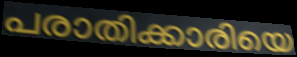
പരാതിക്കാരിയെ